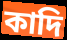
কাদি